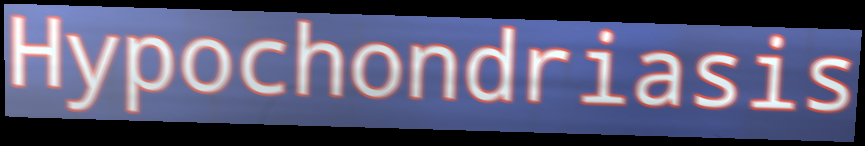
Hypochondriasis